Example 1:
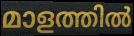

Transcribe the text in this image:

മാളത്തിൽ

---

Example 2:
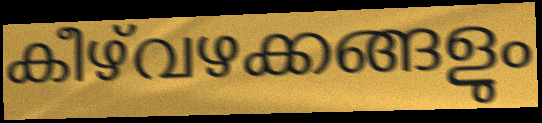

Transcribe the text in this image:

കീഴ്‌വഴക്കങ്ങളും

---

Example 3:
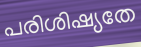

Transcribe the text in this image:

പരിശിഷ്യതേ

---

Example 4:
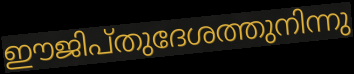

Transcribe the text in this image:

ഈജിപ്തുദേശത്തുനിന്നു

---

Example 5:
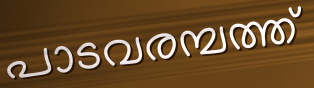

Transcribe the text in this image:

പാടവരമ്പത്ത്